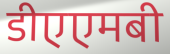
डीएएमबी